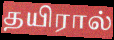
தயிரால்